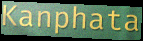
Kanphata